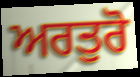
ਅਰਤੁਰੋ